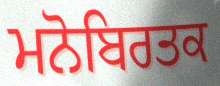
ਮਨੋਬਿਰਤਕ